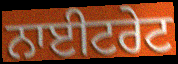
ਨਾਈਟਰੇਟ